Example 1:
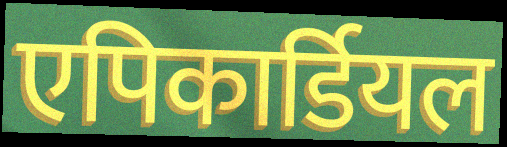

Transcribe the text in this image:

एपिकार्डियल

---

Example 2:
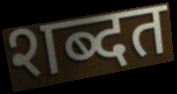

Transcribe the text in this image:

शब्दत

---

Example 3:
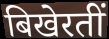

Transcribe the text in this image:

बिखेरतीं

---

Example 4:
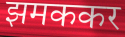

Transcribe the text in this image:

झमककर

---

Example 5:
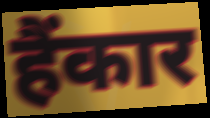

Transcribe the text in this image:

हैंकार